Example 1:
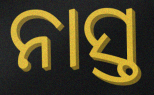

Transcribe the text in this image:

ନାସ୍ତ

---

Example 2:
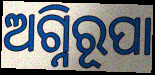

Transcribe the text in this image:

ଅଗ୍ନିରୂପା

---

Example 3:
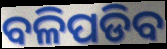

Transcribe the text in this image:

ବଳିପଡିବ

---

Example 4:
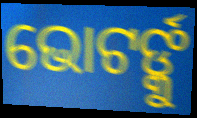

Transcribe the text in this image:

ଭୋଟର୍ଙ୍କୁ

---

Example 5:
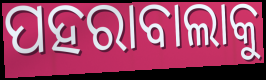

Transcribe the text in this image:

ପହରାବାଲାକୁ